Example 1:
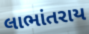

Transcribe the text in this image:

લાભાંતરાય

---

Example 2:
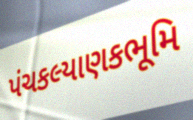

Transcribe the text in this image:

પંચકલ્યાણકભૂમિ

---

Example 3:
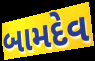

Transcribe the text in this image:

બામદેવ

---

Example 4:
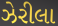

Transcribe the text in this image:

ઝેરીલા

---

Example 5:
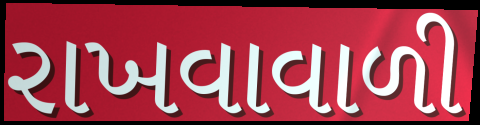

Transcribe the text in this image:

રાખવાવાળી